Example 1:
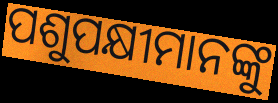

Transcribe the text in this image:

ପଶୁପକ୍ଷୀମାନଙ୍କୁ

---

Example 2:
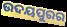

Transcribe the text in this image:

ଉଦୟପୁରର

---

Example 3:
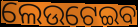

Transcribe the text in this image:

ଲେଉଟେଇବ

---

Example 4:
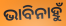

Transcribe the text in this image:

ଭାବିନାହୁଁ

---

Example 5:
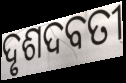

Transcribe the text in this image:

ଦୃଶଦବତୀ